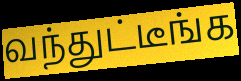
வந்துட்டீங்க